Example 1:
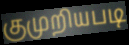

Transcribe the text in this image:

குமுறியபடி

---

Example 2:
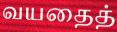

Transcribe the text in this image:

வயதைத்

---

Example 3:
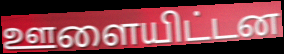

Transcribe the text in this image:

ஊளையிட்டன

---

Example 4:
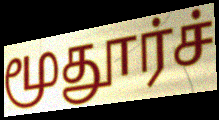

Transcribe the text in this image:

மூதூர்ச்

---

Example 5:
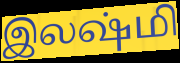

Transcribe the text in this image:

இலஷ்மி